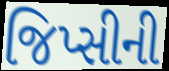
જિપ્સીની